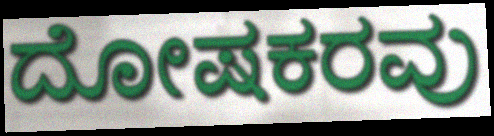
ದೋಷಕರವು